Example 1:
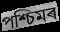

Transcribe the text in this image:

পশ্চিমৰ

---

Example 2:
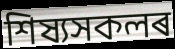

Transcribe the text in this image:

শিষ্যসকলৰ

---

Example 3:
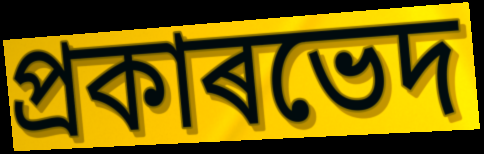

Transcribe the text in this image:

প্ৰকাৰভেদ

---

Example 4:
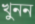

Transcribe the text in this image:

খুনন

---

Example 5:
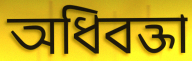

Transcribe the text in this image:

অধিবক্তা